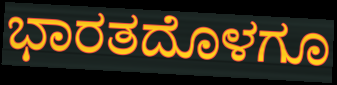
ಭಾರತದೊಳಗೂ